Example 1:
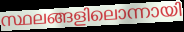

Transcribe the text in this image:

സ്ഥലങ്ങളിലൊന്നായി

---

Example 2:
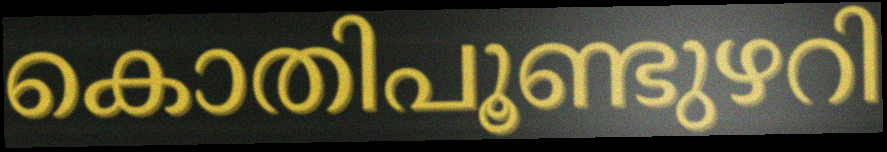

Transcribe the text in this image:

കൊതിപൂണ്ടുഴറി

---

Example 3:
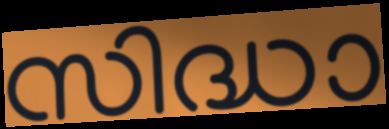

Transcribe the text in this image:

സിദ്ധാ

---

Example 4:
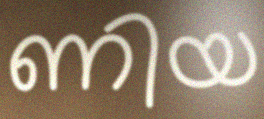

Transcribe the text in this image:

ണിയ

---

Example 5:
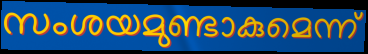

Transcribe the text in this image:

സംശയമുണ്ടാകുമെന്ന്